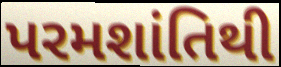
પરમશાંતિથી